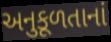
અનુકૂળતાનાં